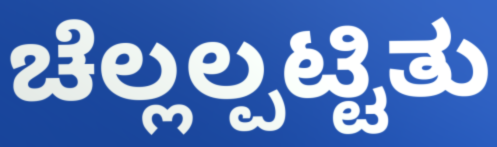
ಚೆಲ್ಲಲ್ಪಟ್ಟಿತು